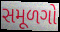
સમૂળગો